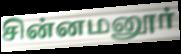
சின்னமனூர்